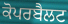
ਕੋਪਰਬੈਲਟ